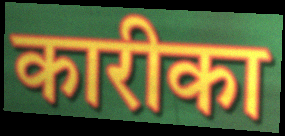
कारीका